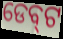
ଡେବ୍‌ଟ